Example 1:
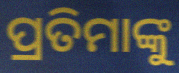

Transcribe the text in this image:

ପ୍ରତିମାଙ୍କୁ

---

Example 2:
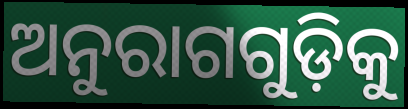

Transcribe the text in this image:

ଅନୁରାଗଗୁଡ଼ିକୁ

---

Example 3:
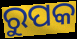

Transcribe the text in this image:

ରୁପକ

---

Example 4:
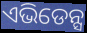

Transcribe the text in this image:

ଏଭିଡେନ୍ସ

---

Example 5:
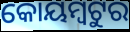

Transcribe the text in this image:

କୋୟମ୍ବଟୁର